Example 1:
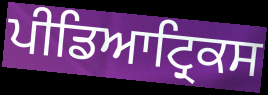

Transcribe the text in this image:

ਪੀਡਿਆਟ੍ਰਿਕਸ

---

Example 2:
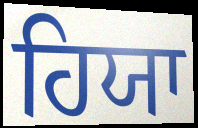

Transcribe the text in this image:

ਹਿਯਾ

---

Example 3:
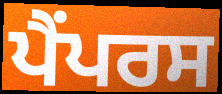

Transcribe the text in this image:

ਪੈਂਪਰਸ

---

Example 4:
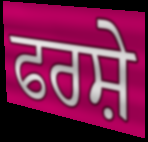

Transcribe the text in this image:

ਫਰਸ਼ੇ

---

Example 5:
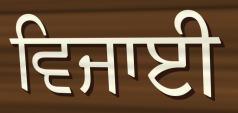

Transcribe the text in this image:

ਵਿਜਾਈ